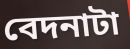
বেদনাটা